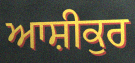
ਆਸ਼ੀਕੁਰ